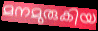
മനമുരുകിയ